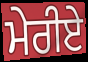
ਮੇਰੀਏ